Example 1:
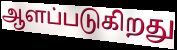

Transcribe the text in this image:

ஆளப்படுகிறது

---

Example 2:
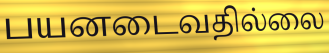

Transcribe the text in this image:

பயனடைவதில்லை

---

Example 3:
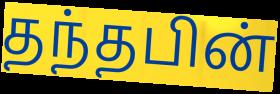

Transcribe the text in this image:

தந்தபின்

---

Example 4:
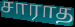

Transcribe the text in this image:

சாராத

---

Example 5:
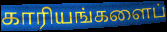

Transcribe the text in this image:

காரியங்களைப்